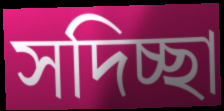
সদিচ্ছা